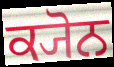
ਕ੍ਯੋਨ